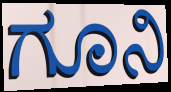
ಗೂನಿ